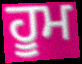
ਹੂਮ